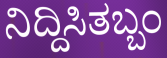
ನಿದ್ದಿಸಿತಬ್ಬಂ